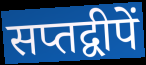
सप्तद्वीपें